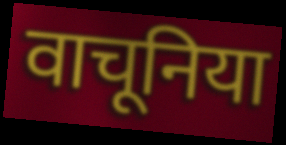
वाचूनिया